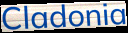
Cladonia